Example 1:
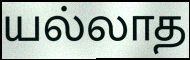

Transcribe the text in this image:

யல்லாத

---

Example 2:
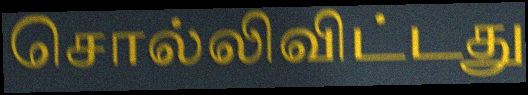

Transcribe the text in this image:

சொல்லிவிட்டது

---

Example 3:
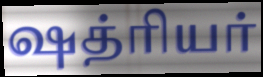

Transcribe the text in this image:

ஷத்ரியர்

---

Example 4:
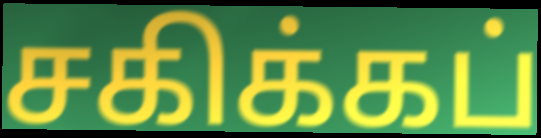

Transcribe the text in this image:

சகிக்கப்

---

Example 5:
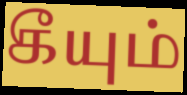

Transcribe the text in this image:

கீயும்